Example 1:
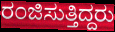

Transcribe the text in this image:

ರಂಜಿಸುತ್ತಿದ್ದರು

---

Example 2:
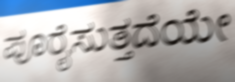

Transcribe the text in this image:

ಪೂರೈಸುತ್ತದೆಯೇ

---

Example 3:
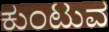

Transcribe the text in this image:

ಕುಂಟುವ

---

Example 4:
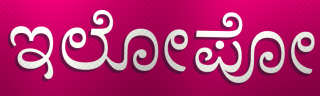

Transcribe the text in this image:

ಇಲೋಪೋ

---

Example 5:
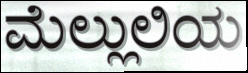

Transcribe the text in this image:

ಮೆಲ್ಲುಲಿಯ